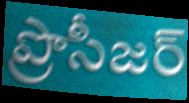
ప్రొసీజర్